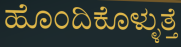
ಹೊಂದಿಕೊಳ್ಳುತ್ತೆ